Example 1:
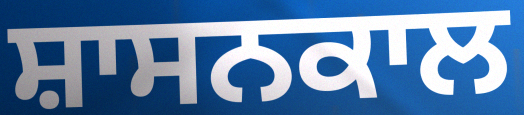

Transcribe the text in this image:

ਸ਼ਾਸਨਕਾਲ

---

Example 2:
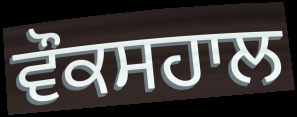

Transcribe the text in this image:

ਵੌਕਸਹਾਲ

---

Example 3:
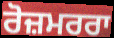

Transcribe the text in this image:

ਰੋਜ਼ਮਰਰਾ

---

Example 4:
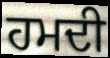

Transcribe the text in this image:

ਹਮਦੀ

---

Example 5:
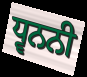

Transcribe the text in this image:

ਧ੍ਵਨਨੀ